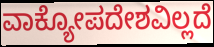
ವಾಕ್ಯೋಪದೇಶವಿಲ್ಲದೆ